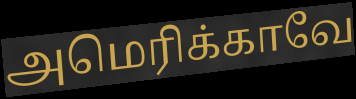
அமெரிக்காவே